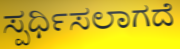
ಸ್ಪರ್ಧಿಸಲಾಗದೆ